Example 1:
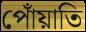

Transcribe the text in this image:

পোঁয়াতি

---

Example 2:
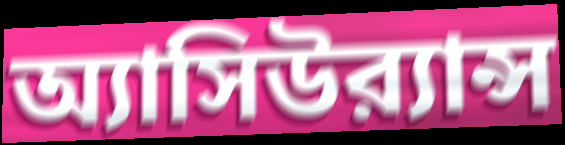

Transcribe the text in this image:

অ্যাসিউর‍্যান্স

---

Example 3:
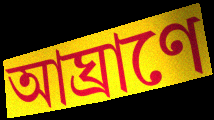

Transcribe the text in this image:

আঘ্রাণে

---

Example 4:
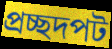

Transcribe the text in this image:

প্রচ্ছদপট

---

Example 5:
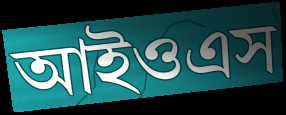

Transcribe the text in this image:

আইওএস